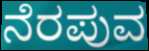
ನೆರಪುವ